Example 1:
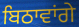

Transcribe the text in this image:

ਬਿਠਾਵਾਂਗੇ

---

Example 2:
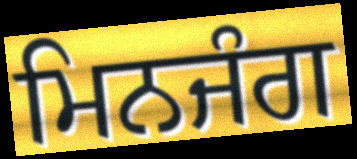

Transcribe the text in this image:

ਮਿਨਜੰਗ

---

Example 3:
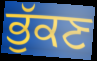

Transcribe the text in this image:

ਭੁੱਕਣ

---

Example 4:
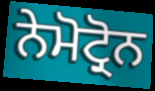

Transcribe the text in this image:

ਨੇਮੋਟ੍ਰੋਨ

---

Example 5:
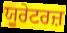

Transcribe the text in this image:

ਯੂਰੇਟਰਜ਼